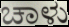
ಚಾಳು